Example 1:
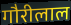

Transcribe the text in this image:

गौरीलाल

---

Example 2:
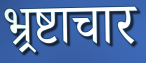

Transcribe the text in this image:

भ्र्रष्टाचार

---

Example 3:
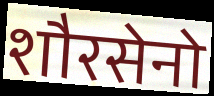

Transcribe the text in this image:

शौरसेनो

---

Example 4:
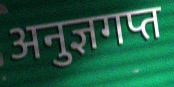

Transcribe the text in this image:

अनुज्ञगप्त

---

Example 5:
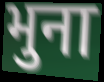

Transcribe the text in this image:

भुना